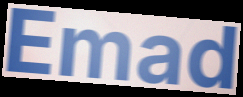
Emad